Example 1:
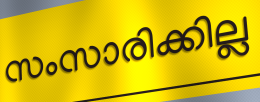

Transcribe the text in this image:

സംസാരിക്കില്ല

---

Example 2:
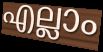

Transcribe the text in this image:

എല്ലാം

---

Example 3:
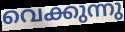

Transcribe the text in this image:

വെക്കുന്നു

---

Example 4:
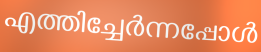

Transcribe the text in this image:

എത്തിച്ചേർന്നപ്പോൾ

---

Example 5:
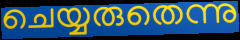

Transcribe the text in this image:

ചെയ്യരുതെന്നു